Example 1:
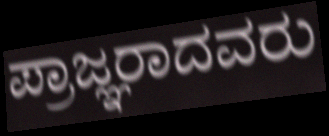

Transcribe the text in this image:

ಪ್ರಾಜ್ಞರಾದವರು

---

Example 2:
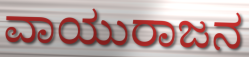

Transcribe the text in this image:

ವಾಯುರಾಜನ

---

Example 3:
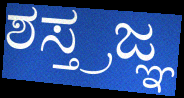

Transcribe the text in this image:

ಶಸ್ತ್ರಜ್ಞ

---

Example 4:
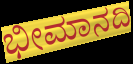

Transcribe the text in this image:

ಭೀಮಾನದಿ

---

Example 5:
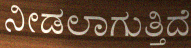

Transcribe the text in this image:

ನೀಡಲಾಗುತ್ತಿದೆ